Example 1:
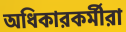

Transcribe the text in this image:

অধিকারকর্মীরা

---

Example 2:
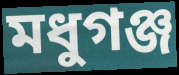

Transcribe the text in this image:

মধুগঞ্জ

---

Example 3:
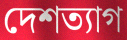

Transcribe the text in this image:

দেশত্যাগ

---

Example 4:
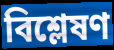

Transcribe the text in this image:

বিশ্লেষণ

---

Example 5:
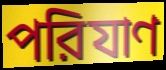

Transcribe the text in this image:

পরিযাণ